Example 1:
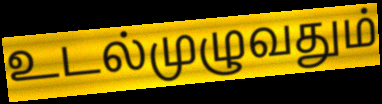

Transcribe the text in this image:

உடல்முழுவதும்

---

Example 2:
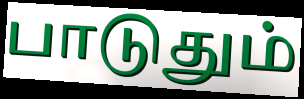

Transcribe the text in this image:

பாடுதும்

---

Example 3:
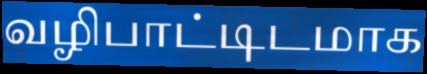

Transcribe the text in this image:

வழிபாட்டிடமாக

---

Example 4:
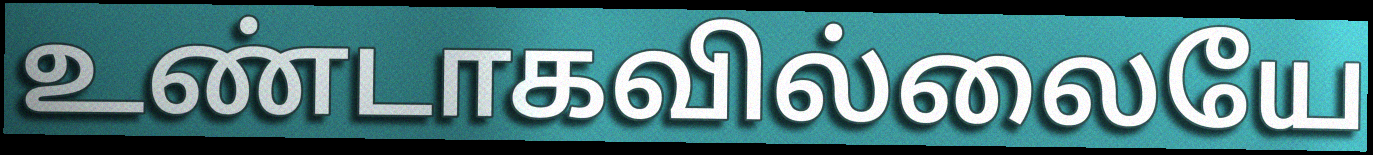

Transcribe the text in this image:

உண்டாகவில்லையே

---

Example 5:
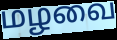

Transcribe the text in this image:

மழவை